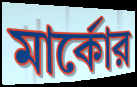
মার্কোর